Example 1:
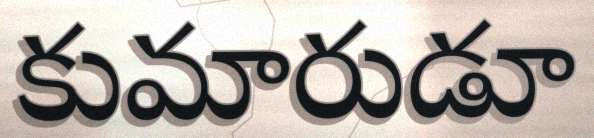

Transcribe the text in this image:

కుమారుడూ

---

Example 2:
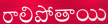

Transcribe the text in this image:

రాలిపోతాయి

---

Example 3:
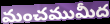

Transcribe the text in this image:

మంచముమీద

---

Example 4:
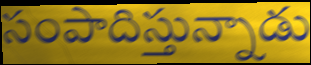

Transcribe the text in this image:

సంపాదిస్తున్నాడు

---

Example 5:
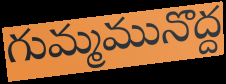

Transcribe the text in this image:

గుమ్మమునొద్ద